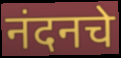
नंदनचे